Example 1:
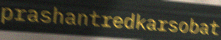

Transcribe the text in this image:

prashantredkarsobat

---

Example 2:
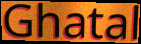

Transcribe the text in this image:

Ghatal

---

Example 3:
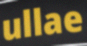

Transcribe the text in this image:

ullae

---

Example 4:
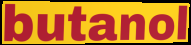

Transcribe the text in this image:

butanol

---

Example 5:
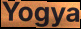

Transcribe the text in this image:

Yogya